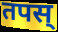
तपस्